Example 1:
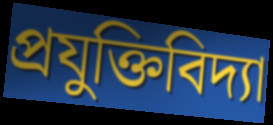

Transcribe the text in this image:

প্রযুক্তিবিদ্যা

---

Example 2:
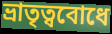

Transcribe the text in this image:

ভ্রাতৃত্ববোধে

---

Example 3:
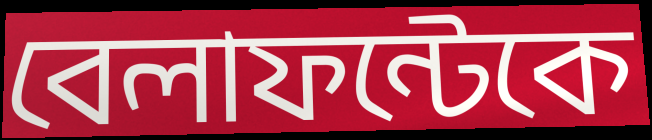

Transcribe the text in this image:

বেলাফন্টেকে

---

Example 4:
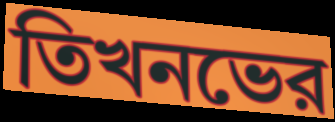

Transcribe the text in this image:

তিখনভের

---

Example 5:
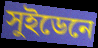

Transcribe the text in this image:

সুইডেনে